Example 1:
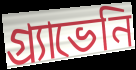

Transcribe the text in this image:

গ্র্যাভেনি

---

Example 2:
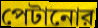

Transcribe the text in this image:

পেটানোর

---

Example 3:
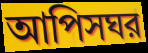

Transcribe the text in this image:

আপিসঘর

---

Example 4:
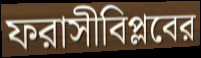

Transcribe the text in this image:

ফরাসীবিপ্লবের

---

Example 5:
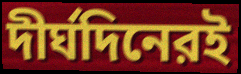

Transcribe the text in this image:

দীর্ঘদিনেরই